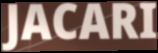
JACARI